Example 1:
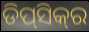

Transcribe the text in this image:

ଡିପ୍‌ସିକ୍‌ର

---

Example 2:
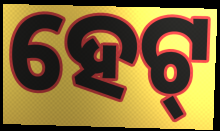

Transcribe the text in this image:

ହେଟ୍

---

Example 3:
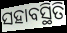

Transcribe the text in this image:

ସହାବସ୍ଥିତି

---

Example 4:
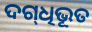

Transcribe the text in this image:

ଦଗ୍‌ଧିଭୂତ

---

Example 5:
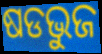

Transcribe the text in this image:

ଷଡଭୁଜ